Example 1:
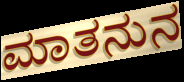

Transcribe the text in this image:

ಮಾತನುನ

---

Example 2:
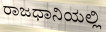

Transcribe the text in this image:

ರಾಜಧಾನಿಯಲ್ಲಿ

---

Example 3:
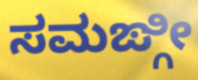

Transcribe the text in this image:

ಸಮಙ್ಗೀ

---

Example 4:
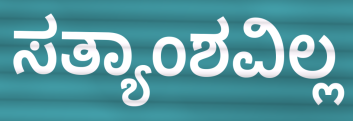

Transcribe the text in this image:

ಸತ್ಯಾಂಶವಿಲ್ಲ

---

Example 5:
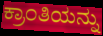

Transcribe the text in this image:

ಕ್ರಾಂತಿಯನ್ನು